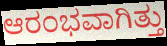
ಆರಂಭವಾಗಿತ್ತು